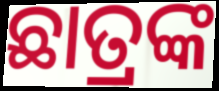
ଛାତ୍ରଙ୍କ